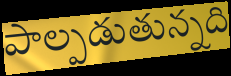
పాల్పడుతున్నది